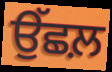
ਉੱਛਲ਼